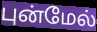
புன்மேல்